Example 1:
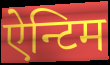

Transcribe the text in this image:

ऐन्टिम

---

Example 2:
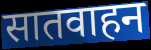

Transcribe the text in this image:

सातवाहन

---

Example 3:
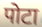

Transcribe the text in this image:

पोटा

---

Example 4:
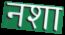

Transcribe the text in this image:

नशा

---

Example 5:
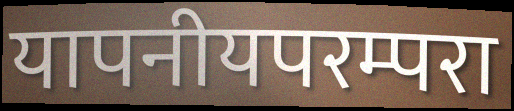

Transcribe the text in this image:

यापनीयपरम्परा